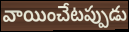
వాయించేటప్పుడు